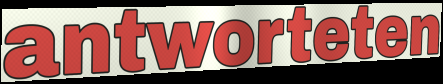
antworteten